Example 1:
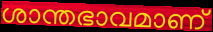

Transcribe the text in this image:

ശാന്തഭാവമാണ്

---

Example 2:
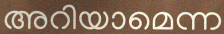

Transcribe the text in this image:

അറിയാമെന്ന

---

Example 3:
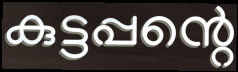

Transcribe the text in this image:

കുട്ടപ്പന്റെ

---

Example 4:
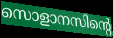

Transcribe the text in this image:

സൊളാനസിന്റെ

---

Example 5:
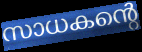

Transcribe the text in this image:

സാധകന്റെ